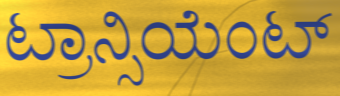
ಟ್ರಾನ್ಸಿಯೆಂಟ್